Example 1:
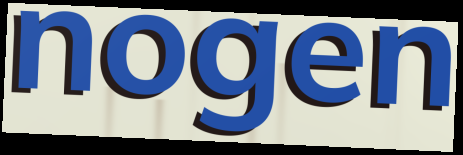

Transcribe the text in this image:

nogen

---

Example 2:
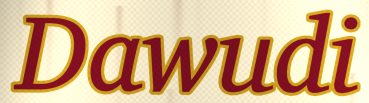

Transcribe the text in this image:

Dawudi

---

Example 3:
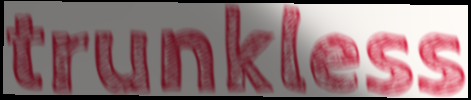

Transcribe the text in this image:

trunkless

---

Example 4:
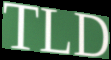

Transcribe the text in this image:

TLD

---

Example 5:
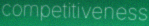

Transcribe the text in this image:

competitiveness